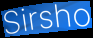
Sirsho